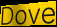
Dove